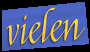
vielen